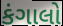
કંગાલો